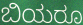
ಬಿಯರೂ